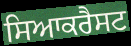
ਸਿਆਕਰੈਸਟ